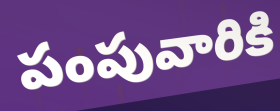
పంపువారికి